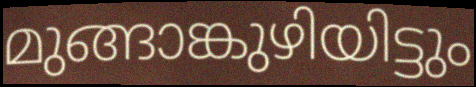
മുങ്ങാങ്കുഴിയിട്ടും